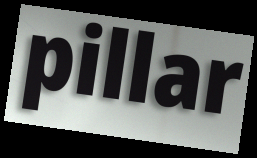
pillar